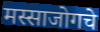
मस्साजोगचे